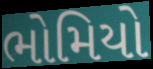
ભોમિયો